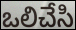
ఒలిచేసి